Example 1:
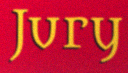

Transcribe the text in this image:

Jury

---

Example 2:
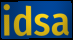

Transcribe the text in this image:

idsa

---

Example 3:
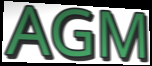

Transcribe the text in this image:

AGM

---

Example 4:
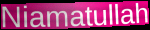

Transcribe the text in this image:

Niamatullah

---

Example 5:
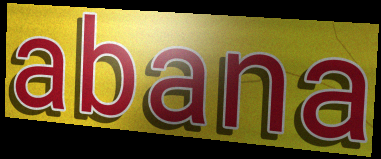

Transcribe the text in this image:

abana